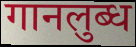
गानलुब्ध